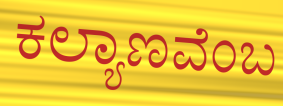
ಕಲ್ಯಾಣವೆಂಬ